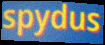
spydus